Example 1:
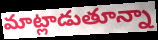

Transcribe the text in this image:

మాట్లాడుతూన్నా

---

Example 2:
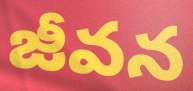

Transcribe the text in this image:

జీవన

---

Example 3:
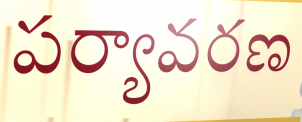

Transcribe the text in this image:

పర్యావరణ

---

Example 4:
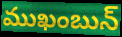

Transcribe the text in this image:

ముఖంబున్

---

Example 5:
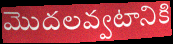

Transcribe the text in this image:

మొదలవ్వటానికి